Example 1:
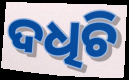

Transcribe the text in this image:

ଦଧିଚି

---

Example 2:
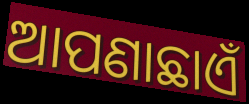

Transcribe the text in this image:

ଆପଣାଛାଏଁ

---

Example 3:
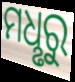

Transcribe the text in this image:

ମଧୢରୁ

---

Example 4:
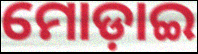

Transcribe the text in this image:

ମୋଡ଼ାଇ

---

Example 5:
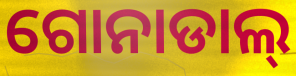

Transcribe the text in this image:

ଗୋନାଡାଲ୍